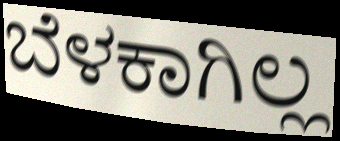
ಬೆಳಕಾಗಿಲ್ಲ